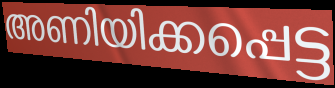
അണിയിക്കപ്പെട്ട